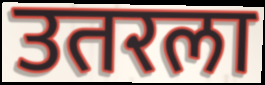
उतरला